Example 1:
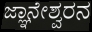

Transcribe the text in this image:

ಜ್ಞಾನೇಶ್ವರನ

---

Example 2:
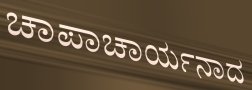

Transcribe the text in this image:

ಚಾಪಾಚಾರ್ಯನಾದ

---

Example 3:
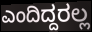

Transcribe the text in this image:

ಎಂದಿದ್ದರಲ್ಲ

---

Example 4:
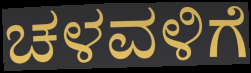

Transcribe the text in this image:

ಚಳವಳಿಗೆ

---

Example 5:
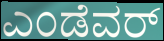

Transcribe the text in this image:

ಎಂಡೆವರ್